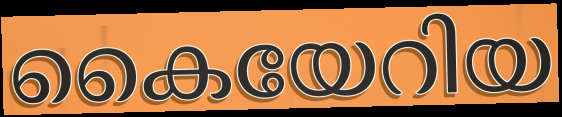
കൈയേറിയ